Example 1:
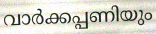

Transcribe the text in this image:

വാർക്കപ്പണിയും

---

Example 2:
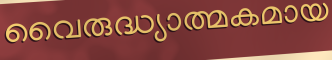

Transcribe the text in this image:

വൈരുദ്ധ്യാത്മകമായ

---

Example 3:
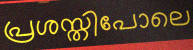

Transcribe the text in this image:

പ്രശസ്തിപോലെ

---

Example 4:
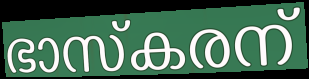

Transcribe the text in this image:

ഭാസ്‌കരന്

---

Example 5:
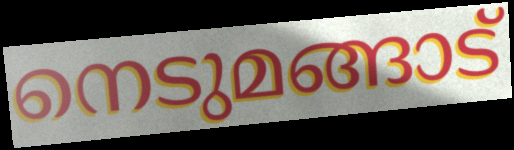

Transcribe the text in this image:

നെടുമങ്ങാട്